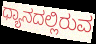
ಧ್ಯಾನದಲ್ಲಿರುವ